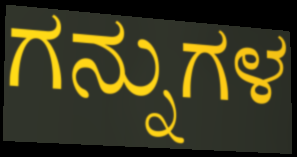
ಗನ್ನುಗಳ